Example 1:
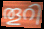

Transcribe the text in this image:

തൂറി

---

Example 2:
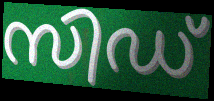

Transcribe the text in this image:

സിഡ്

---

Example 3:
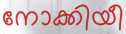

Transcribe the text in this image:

നോക്കിയീ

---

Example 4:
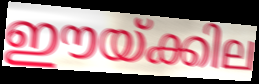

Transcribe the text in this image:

ഈയ്ക്കില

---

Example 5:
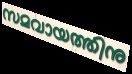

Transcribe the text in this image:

സമവായത്തിനു